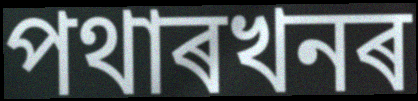
পথাৰখনৰ